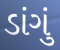
ડાંગું